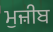
ਮੁਜ਼ੀਬ